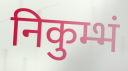
निकुम्भं